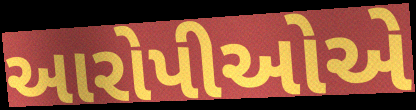
આરોપીઓએ